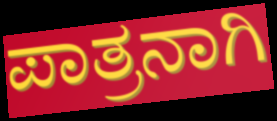
ಪಾತ್ರನಾಗಿ